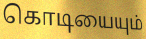
கொடியையும்